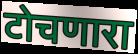
टोचणारा